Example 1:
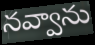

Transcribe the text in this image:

నవ్వాను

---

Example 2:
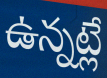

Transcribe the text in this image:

ఉన్నట్లే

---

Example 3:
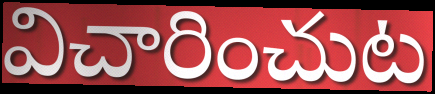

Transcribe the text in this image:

విచారించుట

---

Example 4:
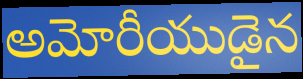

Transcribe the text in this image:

అమోరీయుడైన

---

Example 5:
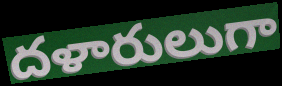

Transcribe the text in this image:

దళారులుగా